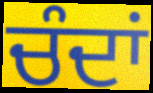
ਚੰਦਾਂ